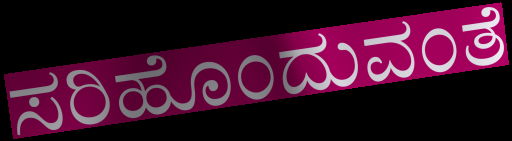
ಸರಿಹೊಂದುವಂತೆ